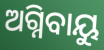
ଅଗ୍ନିବାୟୁ